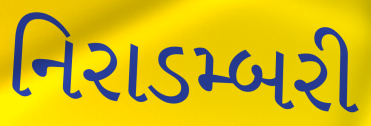
નિરાડમ્બરી